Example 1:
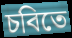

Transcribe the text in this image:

চবিতে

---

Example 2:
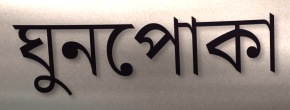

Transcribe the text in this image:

ঘুনপোকা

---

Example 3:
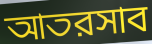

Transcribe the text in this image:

আতরসাব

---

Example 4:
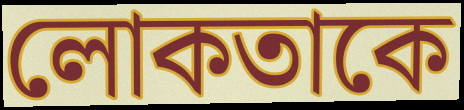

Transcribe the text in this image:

লোকতাকে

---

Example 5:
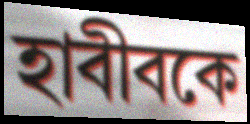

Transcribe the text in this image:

হাবীবকে